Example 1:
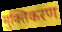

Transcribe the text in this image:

मुक्तिकरण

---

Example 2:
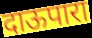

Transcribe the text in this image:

दाऊपारा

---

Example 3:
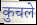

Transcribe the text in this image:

कुचले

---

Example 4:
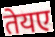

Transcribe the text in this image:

तेयए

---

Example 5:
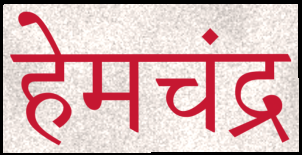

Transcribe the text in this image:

हेमचंद्र